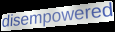
disempowered